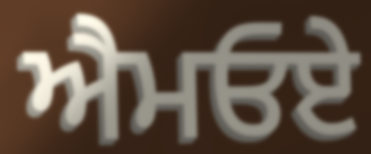
ਐਮਓਏ